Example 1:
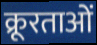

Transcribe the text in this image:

क्रूरताओं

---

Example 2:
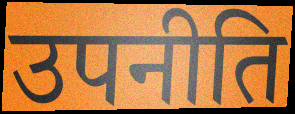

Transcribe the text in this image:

उपनीति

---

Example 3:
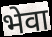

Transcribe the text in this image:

भेवा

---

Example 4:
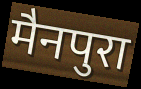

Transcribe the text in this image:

मैनपुरा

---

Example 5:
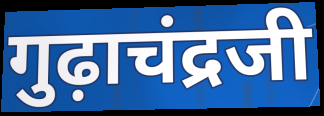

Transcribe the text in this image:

गुढ़ाचंद्रजी